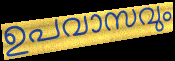
ഉപവാസവും